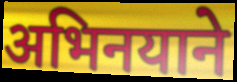
अभिनयाने